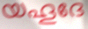
യഹൂദേ